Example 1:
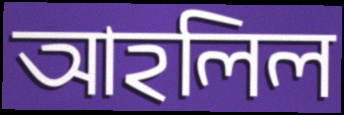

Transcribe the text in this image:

আহলিল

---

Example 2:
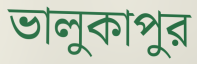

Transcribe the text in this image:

ভালুকাপুর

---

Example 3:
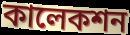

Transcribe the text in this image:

কালেকশন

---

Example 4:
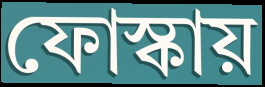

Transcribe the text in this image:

ফোস্কায়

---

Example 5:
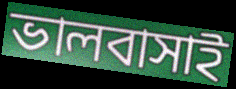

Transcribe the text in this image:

ভালবাসাই